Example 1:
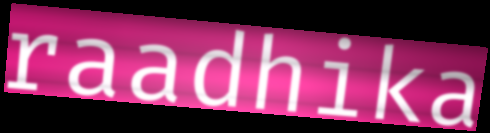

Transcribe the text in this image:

raadhika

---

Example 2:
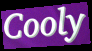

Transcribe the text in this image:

Cooly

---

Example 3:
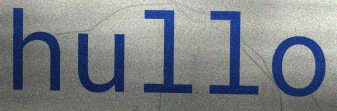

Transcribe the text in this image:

hullo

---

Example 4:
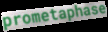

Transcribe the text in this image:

prometaphase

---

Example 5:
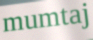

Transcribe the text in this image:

mumtaj